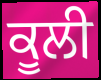
ਕੂਲੀ